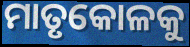
ମାତୃକୋଳକୁ